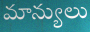
మాన్యులు